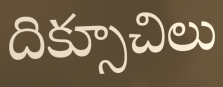
దిక్సూచిలు